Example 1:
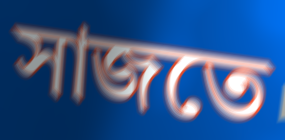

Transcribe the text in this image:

সাজতে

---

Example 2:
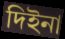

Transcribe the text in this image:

দিইনা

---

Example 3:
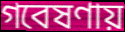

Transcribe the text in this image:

গবেষণায়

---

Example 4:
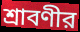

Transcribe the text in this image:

শ্রাবণীর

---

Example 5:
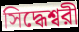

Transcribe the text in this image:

সিদ্ধেশ্বরী